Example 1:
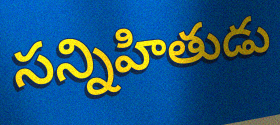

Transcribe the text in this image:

సన్నిహితుడు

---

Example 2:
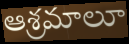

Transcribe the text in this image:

ఆశ్రమాలూ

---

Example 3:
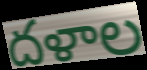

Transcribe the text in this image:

దళాల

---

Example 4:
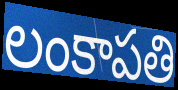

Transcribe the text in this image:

లంకాపతి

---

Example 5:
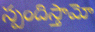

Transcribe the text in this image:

స్పందిస్తామో